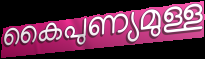
കൈപുണ്യമുള്ള